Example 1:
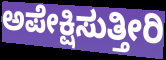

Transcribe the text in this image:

ಅಪೇಕ್ಷಿಸುತ್ತೀರಿ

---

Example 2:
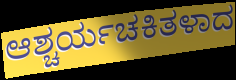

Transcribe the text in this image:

ಆಶ್ಚರ್ಯಚಕಿತಳಾದ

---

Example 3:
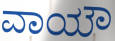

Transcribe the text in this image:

ವಾಯೌ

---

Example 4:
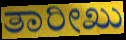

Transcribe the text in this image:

ತಾರೀಖು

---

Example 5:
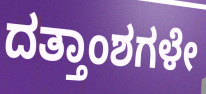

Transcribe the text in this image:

ದತ್ತಾಂಶಗಳೇ